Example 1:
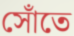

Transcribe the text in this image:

সোঁতে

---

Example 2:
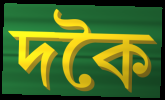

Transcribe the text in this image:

দকৈ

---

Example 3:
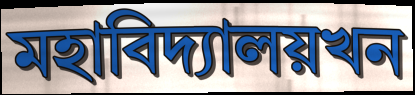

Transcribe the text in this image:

মহাবিদ্যালয়খন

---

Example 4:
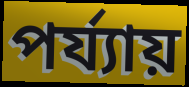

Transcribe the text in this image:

পৰ্য্যায়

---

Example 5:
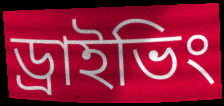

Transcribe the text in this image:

ড্ৰাইভিং